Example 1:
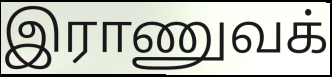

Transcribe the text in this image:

இராணுவக்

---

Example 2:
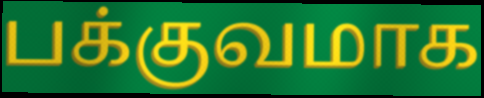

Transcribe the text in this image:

பக்குவமாக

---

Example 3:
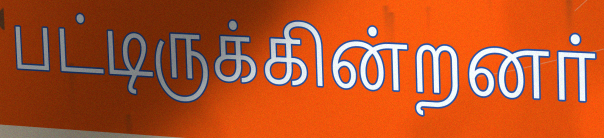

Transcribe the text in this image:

பட்டிருக்கின்றனர்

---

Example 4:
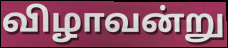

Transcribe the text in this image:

விழாவன்று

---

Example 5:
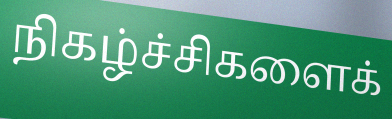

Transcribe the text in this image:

நிகழ்ச்சிகளைக்